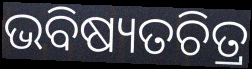
ଭବିଷ୍ୟତଚିତ୍ର